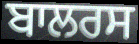
ਬਾਲਰਸ